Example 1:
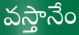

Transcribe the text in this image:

వస్తానేం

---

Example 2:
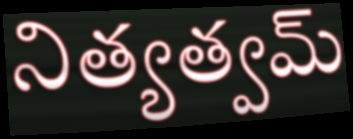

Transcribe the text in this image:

నిత్యత్వమ్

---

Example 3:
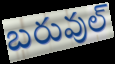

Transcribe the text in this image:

బరువుల్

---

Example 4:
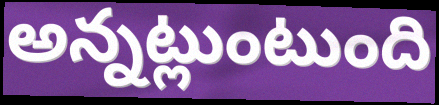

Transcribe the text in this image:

అన్నట్లుంటుంది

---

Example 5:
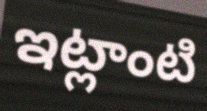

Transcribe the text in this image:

ఇట్లాంటి